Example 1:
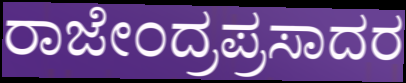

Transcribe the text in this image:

ರಾಜೇಂದ್ರಪ್ರಸಾದರ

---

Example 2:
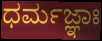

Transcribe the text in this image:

ಧರ್ಮಜ್ಞಾಃ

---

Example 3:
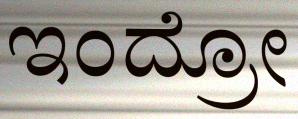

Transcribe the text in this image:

ಇಂದ್ರೋ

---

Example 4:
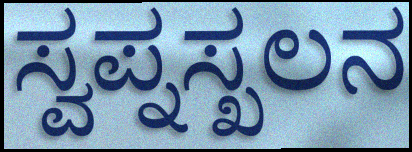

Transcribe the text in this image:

ಸ್ವಪ್ನಸ್ಖಲನ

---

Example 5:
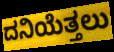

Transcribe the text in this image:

ದನಿಯೆತ್ತಲು